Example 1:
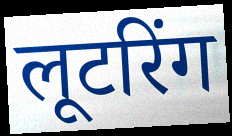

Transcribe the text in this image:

लूटरिंग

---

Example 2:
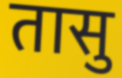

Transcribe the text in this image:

तासु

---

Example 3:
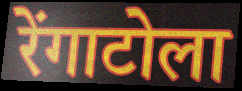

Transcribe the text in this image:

रेंगाटोला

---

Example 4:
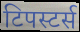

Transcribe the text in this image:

टिपस्टर्स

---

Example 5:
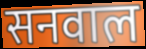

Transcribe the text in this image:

सनवाल